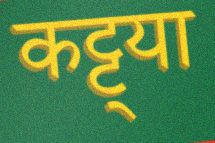
कट्ट्या